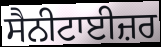
ਸੈਨੀਟਾਈਜ਼ਰ